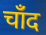
चाँद